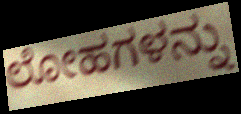
ಲೋಹಗಳನ್ನು